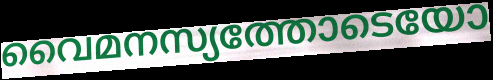
വൈമനസ്യത്തോടെയോ